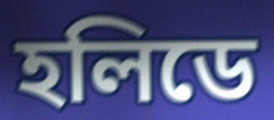
হলিডে